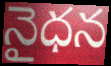
నైధన